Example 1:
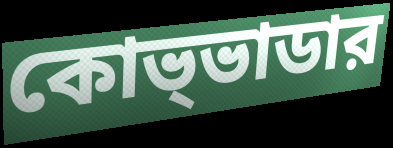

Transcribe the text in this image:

কোভ্ভাডার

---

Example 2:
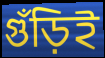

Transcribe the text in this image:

গুঁড়িই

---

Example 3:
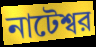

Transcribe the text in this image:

নাটেশ্বর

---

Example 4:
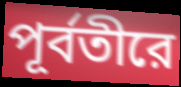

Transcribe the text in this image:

পূর্বতীরে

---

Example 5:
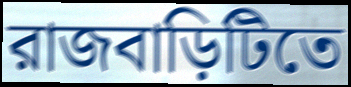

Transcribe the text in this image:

রাজবাড়িটিতে